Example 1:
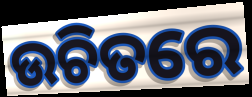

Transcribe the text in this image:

ଉଚିତରେ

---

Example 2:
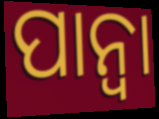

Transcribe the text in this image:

ପାନ୍ଵା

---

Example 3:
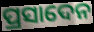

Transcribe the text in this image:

ପ୍ରସାଦେନ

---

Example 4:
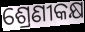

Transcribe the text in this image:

ଶ୍ରେଣୀକକ୍ଷ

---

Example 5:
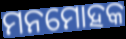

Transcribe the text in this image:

ମନମୋହକ